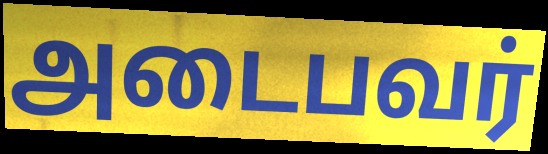
அடைபவர்